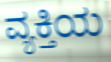
ವ್ಯಕ್ತಿಯ